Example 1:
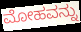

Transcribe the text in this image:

ಮೋಹವನ್ನು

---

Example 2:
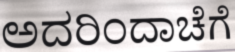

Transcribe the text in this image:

ಅದರಿಂದಾಚೆಗೆ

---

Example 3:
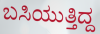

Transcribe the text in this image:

ಬಸಿಯುತ್ತಿದ್ದ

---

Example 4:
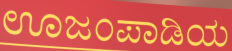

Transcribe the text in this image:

ಊಜಂಪಾಡಿಯ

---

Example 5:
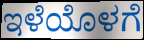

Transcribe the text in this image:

ಇಳೆಯೊಳಗೆ